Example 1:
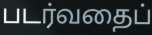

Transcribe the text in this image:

படர்வதைப்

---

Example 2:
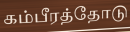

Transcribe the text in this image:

கம்பீரத்தோடு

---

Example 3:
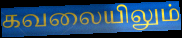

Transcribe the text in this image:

கவலையிலும்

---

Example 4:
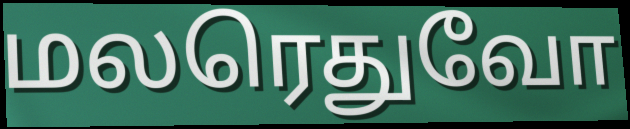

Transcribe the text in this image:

மலரெதுவோ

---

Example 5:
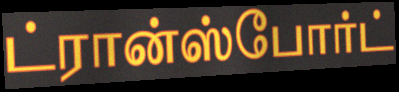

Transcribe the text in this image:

ட்ரான்ஸ்போர்ட்